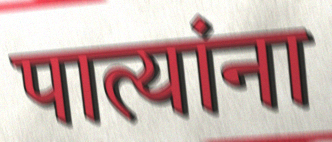
पात्यांना